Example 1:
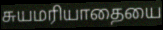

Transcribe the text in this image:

சுயமரியாதையை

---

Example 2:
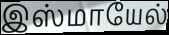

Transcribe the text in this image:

இஸ்மாயேல்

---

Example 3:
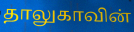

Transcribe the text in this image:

தாலுகாவின்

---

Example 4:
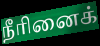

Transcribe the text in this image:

நீரினைக்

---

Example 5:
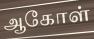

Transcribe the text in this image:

ஆகோள்